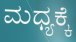
ಮಧ್ಯಕ್ಕೆ